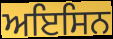
ਅਇਸਿਨ